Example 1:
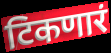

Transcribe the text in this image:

टिकणारं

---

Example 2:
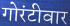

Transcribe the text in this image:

गोरंटीवार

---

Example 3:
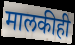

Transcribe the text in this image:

मालकीही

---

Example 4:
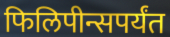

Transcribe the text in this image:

फिलिपीन्सपर्यंत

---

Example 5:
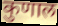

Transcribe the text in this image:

कुणाल